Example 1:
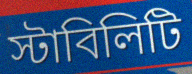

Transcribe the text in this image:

স্টাবিলিটি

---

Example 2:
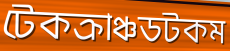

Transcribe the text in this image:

টেকক্রাঞ্চডটকম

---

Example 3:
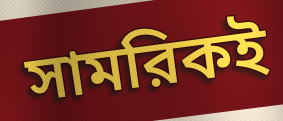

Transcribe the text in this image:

সামরিকই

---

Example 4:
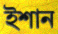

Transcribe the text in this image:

ইশান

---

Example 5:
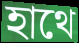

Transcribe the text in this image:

হাথে